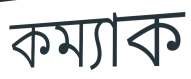
কম্যাক